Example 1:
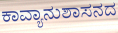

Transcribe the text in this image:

ಕಾವ್ಯಾನುಶಾಸನದ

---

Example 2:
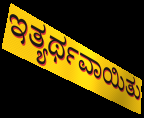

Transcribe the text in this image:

ಇತ್ಯರ್ಥವಾಯಿತು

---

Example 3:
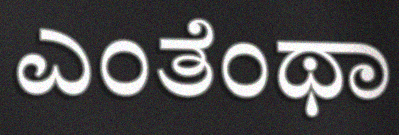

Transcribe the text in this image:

ಎಂತೆಂಥಾ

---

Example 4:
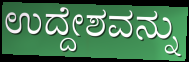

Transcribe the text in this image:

ಉದ್ದೇಶವನ್ನು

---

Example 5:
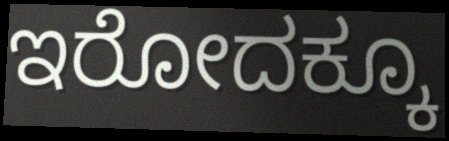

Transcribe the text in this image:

ಇರೋದಕ್ಕೂ